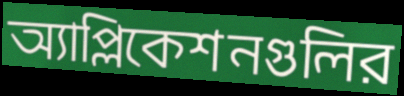
অ্যাপ্লিকেশনগুলির